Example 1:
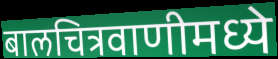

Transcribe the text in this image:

बालचित्रवाणीमध्ये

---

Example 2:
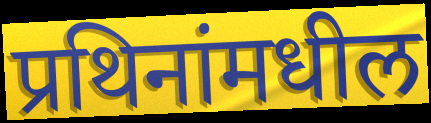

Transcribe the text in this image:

प्रथिनांमधील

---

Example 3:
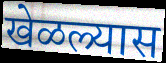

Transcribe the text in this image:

खेळल्यास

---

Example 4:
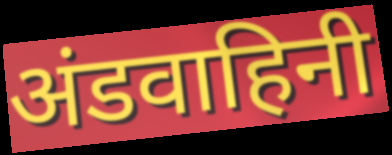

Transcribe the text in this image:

अंडवाहिनी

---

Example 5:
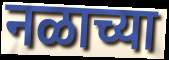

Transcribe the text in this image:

नळाच्या